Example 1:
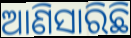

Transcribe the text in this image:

ଆଣିସାରିଛି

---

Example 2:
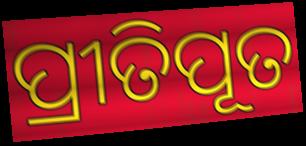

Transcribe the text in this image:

ପ୍ରୀତିପୂତ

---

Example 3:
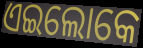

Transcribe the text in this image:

ଏଇଲୋକେ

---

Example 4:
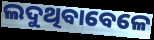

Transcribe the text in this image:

ଲଦୁଥିବାବେଳେ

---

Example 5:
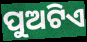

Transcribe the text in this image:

ପୁଅଟିଏ